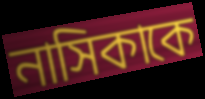
নাসিকাকে